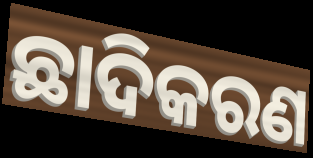
ଛାଦିକରଣ